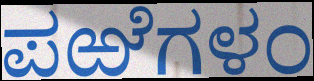
ಪಱೆಗಳಂ